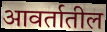
आवर्तातील